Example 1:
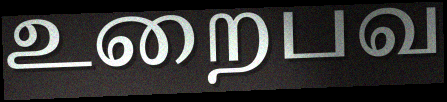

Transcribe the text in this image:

உறைபவ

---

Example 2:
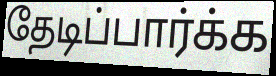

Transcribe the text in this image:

தேடிப்பார்க்க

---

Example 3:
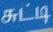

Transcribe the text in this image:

சுட்டி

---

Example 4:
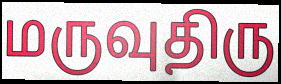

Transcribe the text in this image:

மருவுதிரு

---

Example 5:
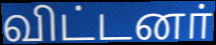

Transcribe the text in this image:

விட்டனர்